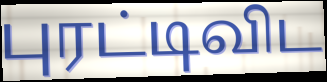
புரட்டிவிட